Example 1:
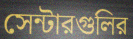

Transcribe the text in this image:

সেন্টারগুলির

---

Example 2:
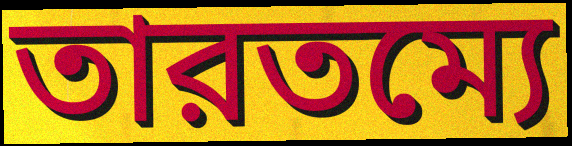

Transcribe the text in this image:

তারতম্যে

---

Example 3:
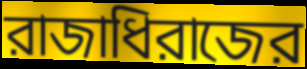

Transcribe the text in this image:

রাজাধিরাজের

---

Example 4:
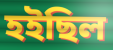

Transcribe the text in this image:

হইছিল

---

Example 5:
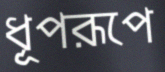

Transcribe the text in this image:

ধূপরূপে